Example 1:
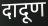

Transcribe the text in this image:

दादूण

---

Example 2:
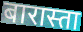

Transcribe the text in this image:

बारास्ता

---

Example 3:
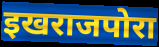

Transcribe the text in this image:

इखराजपोरा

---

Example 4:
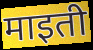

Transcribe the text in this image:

माइती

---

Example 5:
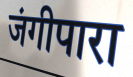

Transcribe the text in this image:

जंगीपारा